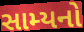
સામ્યનો